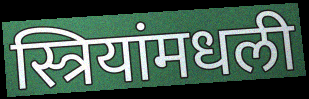
स्त्रियांमधली